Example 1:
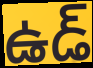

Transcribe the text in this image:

ఉడ్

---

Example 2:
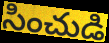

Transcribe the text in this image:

సించుడి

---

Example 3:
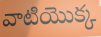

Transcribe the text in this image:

వాటియొక్క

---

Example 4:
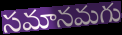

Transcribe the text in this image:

సమానమగు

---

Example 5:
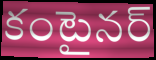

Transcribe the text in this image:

కంటైనర్